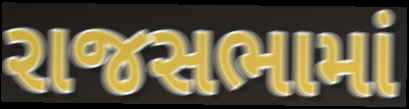
રાજસભામાં